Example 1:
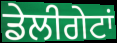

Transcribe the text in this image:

ਡੇਲੀਗੇਟਾਂ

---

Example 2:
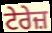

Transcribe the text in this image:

ਟੇਰੇਜ਼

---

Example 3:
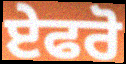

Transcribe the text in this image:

ਏਫਰੋ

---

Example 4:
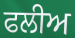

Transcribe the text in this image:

ਫਲੀਅ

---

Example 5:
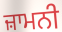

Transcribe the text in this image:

ਜ਼ਾਮਨੀ